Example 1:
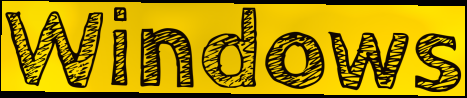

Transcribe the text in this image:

Windows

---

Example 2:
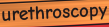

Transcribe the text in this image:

urethroscopy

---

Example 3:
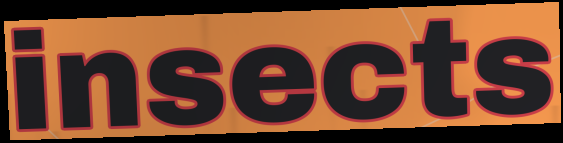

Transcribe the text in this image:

insects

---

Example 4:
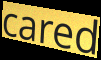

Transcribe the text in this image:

cared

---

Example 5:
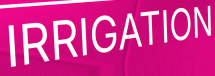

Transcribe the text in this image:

IRRIGATION